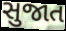
સુજાત